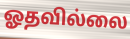
ஓதவில்லை